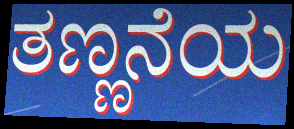
ತಣ್ಣನೆಯ